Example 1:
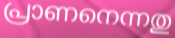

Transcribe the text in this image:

പ്രാണനെന്നതു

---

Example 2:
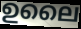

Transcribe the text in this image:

ഉലൈ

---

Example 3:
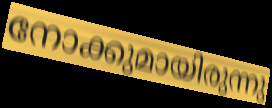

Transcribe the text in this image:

നോക്കുമായിരുന്നു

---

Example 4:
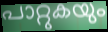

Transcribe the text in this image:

പാറ്റുകയും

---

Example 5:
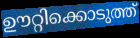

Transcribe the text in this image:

ഊറ്റിക്കൊടുത്ത്